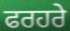
ਫਰਹਰੇ